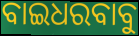
ବାଇଧରବାବୁ